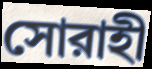
সোরাহী